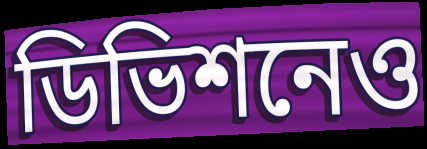
ডিভিশনেও